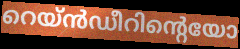
റെയ്ൻഡീറിന്റെയോ